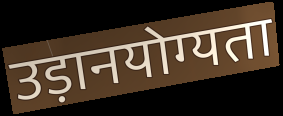
उड़ानयोग्यता